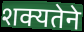
शक्यतेने